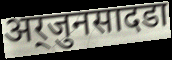
अर्जुनसादडा